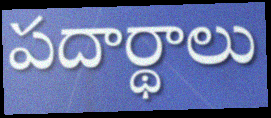
పదార్థాలు